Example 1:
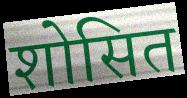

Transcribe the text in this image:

शोसित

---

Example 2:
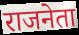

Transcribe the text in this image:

राजनेता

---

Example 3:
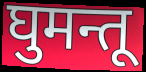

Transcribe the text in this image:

घुमन्तू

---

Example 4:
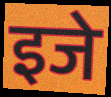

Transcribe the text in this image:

इजे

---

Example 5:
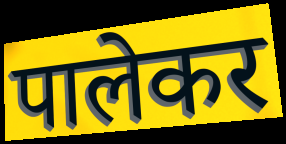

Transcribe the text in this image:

पालेकर